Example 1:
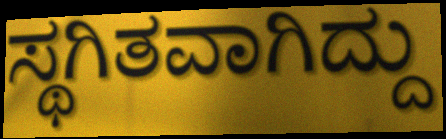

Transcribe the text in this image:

ಸ್ಥಗಿತವಾಗಿದ್ದು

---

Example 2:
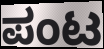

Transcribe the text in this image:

ಪಂಟ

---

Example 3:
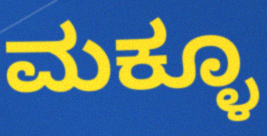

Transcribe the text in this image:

ಮಕ್ಳೂ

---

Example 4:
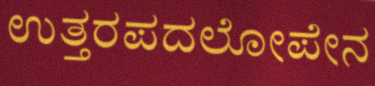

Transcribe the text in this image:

ಉತ್ತರಪದಲೋಪೇನ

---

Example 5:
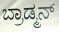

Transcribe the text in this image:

ಬ್ರಾಡ್ಮನ್